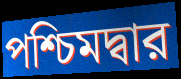
পশ্চিমদ্বার